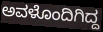
ಅವಳೊಂದಿಗಿದ್ದ